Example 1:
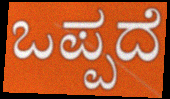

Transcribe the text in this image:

ಒಪ್ಪದೆ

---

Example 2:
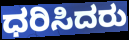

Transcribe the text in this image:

ಧರಿಸಿದರು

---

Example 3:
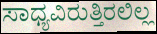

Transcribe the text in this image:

ಸಾಧ್ಯವಿರುತ್ತಿರಲಿಲ್ಲ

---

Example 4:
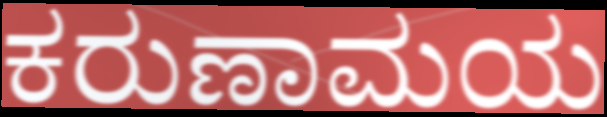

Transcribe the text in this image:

ಕರುಣಾಮಯ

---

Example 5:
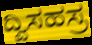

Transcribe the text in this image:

ದ್ವಿಸಹಸ್ರ